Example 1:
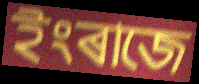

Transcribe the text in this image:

ইংৰাজে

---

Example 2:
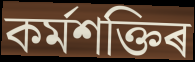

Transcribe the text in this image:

কৰ্মশক্তিৰ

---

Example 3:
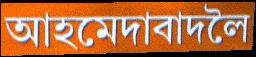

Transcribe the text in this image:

আহমেদাবাদলৈ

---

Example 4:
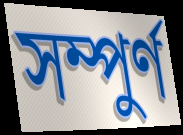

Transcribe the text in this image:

সম্পুৰ্ণ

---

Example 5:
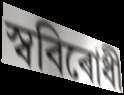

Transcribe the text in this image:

স্ববিৰোধী